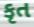
કૃત